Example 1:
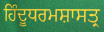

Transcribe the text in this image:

ਹਿੰਦੂਧਰਮਸ਼ਾਸਤ੍ਰ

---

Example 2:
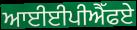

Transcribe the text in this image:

ਆਈਈਪੀਐੱਫਏ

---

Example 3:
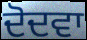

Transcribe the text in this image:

ਦੋਦਵਾ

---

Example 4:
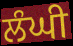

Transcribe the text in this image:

ਲੰਘੀ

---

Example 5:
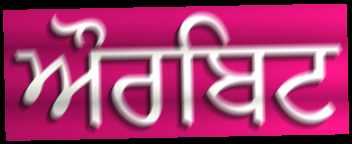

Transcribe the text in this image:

ਔਰਬਿਟ